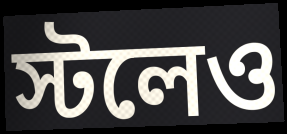
স্টলেও